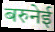
बरुनेई